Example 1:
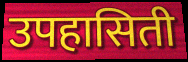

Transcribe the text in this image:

उपहासिती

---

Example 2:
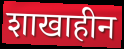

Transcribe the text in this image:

शाखाहीन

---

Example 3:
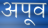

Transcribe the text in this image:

अपूव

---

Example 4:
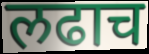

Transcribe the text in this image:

लढाच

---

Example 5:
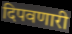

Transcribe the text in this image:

दिपवणारी